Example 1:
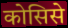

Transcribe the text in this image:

कोसिसे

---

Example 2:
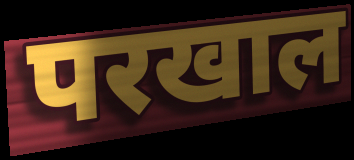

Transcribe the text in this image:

परखाल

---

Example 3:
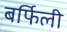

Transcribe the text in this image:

बर्फिली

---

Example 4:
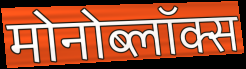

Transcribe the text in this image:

मोनोब्लॉक्स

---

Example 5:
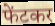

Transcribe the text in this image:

फेंटकर